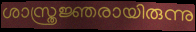
ശാസ്ത്രജ്ഞരായിരുന്നു